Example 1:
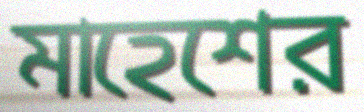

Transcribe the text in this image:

মাহেশের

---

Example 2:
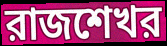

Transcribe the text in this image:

রাজশেখর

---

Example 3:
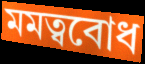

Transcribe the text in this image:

মমত্ববোধ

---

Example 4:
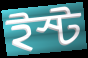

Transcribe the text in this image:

ইস্ট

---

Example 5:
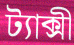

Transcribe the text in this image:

ট্যাক্সী